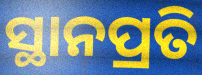
ସ୍ଥାନପ୍ରତି